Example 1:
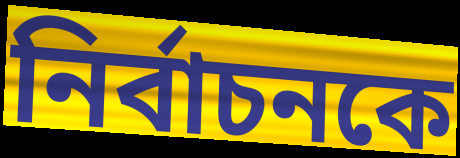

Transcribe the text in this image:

নির্বাচনকে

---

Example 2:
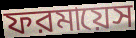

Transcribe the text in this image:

ফরমায়েস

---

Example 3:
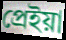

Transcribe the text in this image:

প্রেইয়া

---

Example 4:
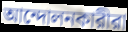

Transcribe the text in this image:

আন্দোলনকারীরা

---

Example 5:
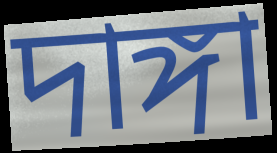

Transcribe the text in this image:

দাঙ্গা